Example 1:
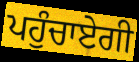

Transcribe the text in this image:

ਪਹੁੰਚਾਏਗੀ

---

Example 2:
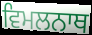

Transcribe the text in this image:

ਵਿਮਲਨਾਥ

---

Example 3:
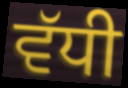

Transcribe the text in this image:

ਵੱਧੀ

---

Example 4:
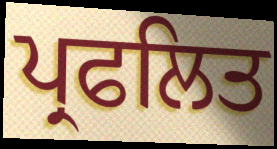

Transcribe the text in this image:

ਪ੍ਰਫਲਿਤ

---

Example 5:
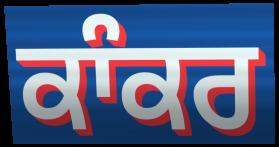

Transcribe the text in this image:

ਕਾੰਕਰ